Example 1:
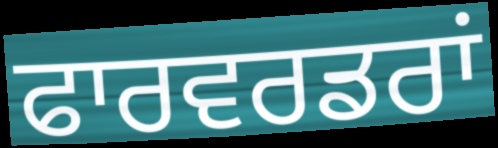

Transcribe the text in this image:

ਫਾਰਵਰਡਰਾਂ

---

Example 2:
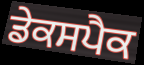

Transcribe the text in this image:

ਡੇਕਸਪੈਕ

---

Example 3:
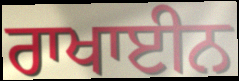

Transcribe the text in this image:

ਰਾਖਾਈਨ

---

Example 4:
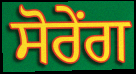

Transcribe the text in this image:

ਸੋਰੇਂਗ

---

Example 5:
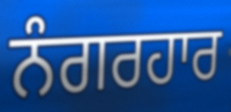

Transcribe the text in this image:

ਨੰਗਰਹਾਰ